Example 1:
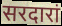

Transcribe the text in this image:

सरदारां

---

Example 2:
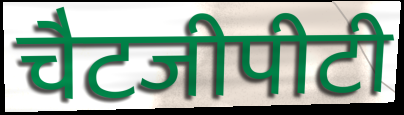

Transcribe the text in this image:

चैटजीपीटी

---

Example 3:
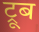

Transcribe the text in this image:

ट्रूब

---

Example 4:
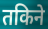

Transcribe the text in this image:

तकिने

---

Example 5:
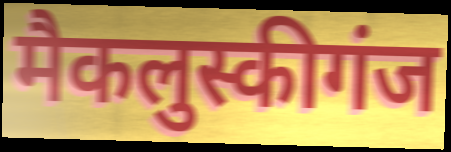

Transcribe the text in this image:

मैकलुस्कीगंज